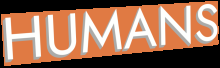
HUMANS